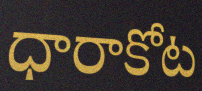
ధారాకోట